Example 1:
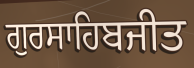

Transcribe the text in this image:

ਗੁਰਸਾਹਿਬਜੀਤ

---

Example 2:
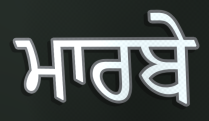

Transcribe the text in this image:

ਮਾਰਬੇ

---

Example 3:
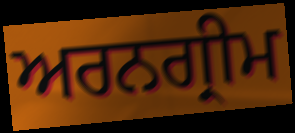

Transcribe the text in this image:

ਅਰਨਗ੍ਰੀਮ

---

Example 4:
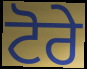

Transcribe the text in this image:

ਟੋਰੇ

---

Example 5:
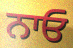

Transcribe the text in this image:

ਨਾਓ